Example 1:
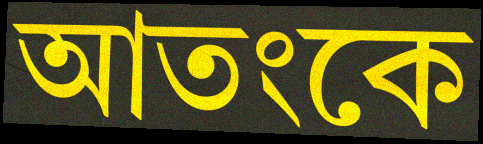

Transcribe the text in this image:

আতংকে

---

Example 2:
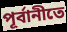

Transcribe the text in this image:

পূর্বানীতে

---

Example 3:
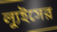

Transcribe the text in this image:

ল্যুইসের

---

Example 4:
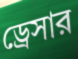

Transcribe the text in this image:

ড্রেসার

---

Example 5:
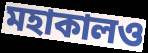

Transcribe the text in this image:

মহাকালও